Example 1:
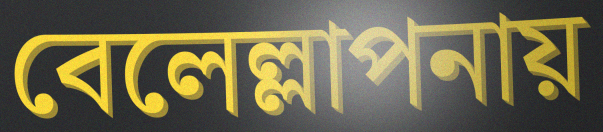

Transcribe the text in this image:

বেলেল্লাপনায়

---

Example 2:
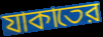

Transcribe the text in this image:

যাকাতের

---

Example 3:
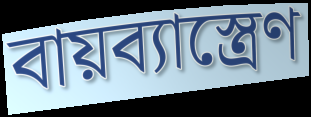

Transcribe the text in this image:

বায়ব্যাস্ত্রেণ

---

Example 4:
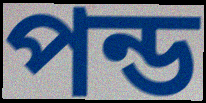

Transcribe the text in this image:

পন্ড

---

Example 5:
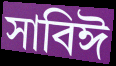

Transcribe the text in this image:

সাবিঈ